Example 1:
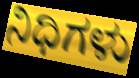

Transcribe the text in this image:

ನಿಧಿಗಳು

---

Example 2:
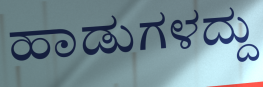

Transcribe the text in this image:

ಹಾಡುಗಳದ್ದು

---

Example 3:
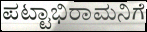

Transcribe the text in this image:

ಪಟ್ಟಾಭಿರಾಮನಿಗೆ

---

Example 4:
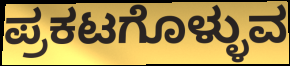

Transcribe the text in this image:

ಪ್ರಕಟಗೊಳ್ಳುವ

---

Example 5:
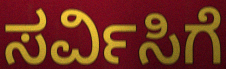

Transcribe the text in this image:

ಸರ್ವಿಸಿಗೆ